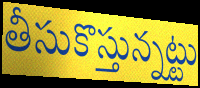
తీసుకొస్తున్నట్టు